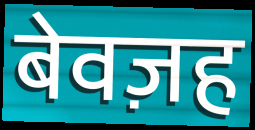
बेवज़ह